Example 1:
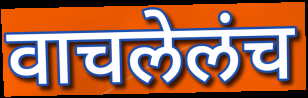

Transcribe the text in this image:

वाचलेलंच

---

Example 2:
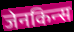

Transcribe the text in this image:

जेनकिन्स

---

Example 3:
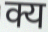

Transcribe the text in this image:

क्य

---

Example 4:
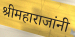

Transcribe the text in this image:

श्रीमहाराजांनी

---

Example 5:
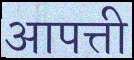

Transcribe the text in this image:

आपत्ती